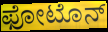
ಫೋಟೊನ್